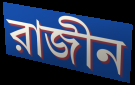
রাজীন